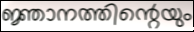
ജ്ഞാനത്തിന്റെയും